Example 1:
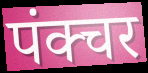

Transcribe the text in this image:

पंक्चर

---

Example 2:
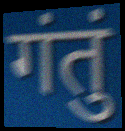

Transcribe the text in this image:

गंतुं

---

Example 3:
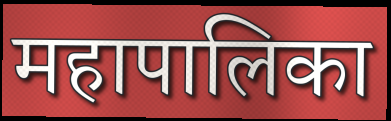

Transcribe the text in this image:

महापालिका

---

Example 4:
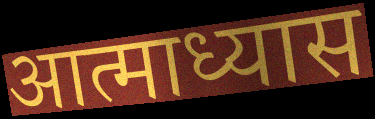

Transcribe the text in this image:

आत्माध्यास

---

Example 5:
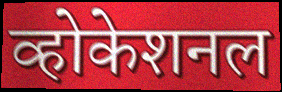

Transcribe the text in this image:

व्होकेशनल